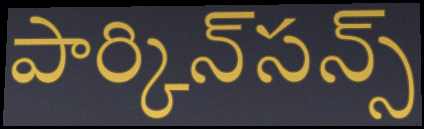
పార్కిన్‌సన్స్